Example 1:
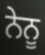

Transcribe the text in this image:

ਨੇਨੂ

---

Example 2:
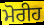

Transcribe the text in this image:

ਮੋਰੀਹ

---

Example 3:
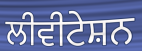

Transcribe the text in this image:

ਲੀਵੀਟੇਸ਼ਨ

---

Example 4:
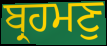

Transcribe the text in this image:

ਬ੍ਰਹਮਣੁ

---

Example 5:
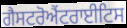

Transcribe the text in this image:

ਗੈਸਟਰੋਐਂਟਰਾਈਟਿਸ